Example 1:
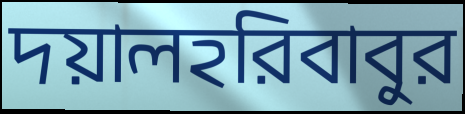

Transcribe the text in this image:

দয়ালহরিবাবুর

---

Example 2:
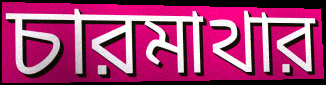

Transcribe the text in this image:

চারমাথার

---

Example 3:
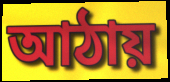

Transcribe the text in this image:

আঠায়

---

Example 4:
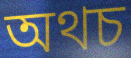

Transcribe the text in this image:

অথচ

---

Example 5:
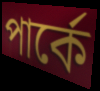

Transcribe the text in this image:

পার্কে